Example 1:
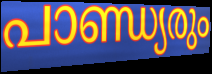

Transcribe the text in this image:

പാണ്ഡ്യരും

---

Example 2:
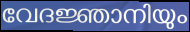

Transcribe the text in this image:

വേദജ്ഞാനിയും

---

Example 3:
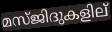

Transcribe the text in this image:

മസ്ജിദുകളില്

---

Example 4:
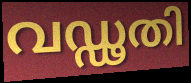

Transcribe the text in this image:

വഡ്ഢതി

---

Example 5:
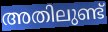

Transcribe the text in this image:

അതിലുണ്ട്